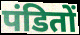
पंडितों